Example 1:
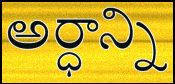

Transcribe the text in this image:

అర్ధాన్ని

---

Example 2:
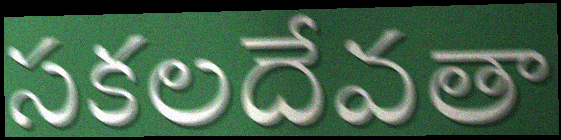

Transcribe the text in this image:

సకలదేవతా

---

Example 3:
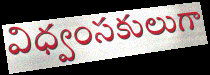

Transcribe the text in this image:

విధ్వంసకులుగా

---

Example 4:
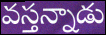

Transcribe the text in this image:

వస్తన్నాడు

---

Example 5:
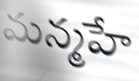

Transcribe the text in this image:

మన్మహే